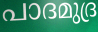
പാദമുദ്ര